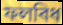
ফলবিধ